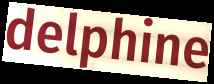
delphine